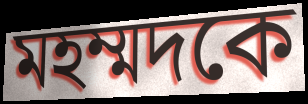
মহম্মদকে